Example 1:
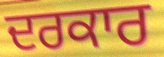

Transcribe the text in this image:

ਦਰਕਾਰ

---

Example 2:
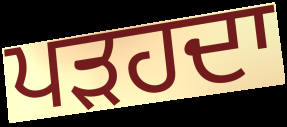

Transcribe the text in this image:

ਪੜਹਦਾ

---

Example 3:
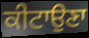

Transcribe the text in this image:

ਕੀਟਾਉਣਾ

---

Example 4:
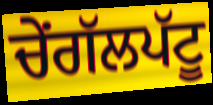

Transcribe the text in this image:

ਚੇਂਗੱਲਪੱਟੂ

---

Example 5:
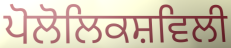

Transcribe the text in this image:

ਪੋਲੋਲਿਕਸ਼ਵਿਲੀ